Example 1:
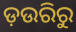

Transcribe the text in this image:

ଡ଼ଉରିରୁ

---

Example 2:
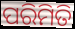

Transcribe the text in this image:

ପରିମିତି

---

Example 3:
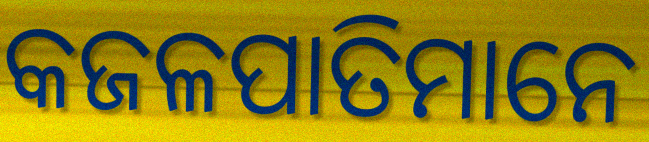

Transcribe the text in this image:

କଜଳପାତିମାନେ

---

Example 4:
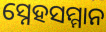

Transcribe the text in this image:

ସ୍ନେହସମ୍ମାନ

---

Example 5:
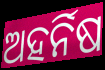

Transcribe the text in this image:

ଅହର୍ନିଷ